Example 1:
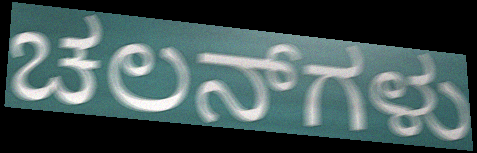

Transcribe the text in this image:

ಚಲನ್‌ಗಳು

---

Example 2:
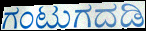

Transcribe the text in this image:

ಗಂಟುಗದಡಿ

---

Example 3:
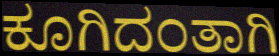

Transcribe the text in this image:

ಕೂಗಿದಂತಾಗಿ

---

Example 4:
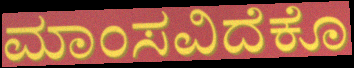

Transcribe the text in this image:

ಮಾಂಸವಿದೆಕೊ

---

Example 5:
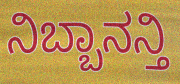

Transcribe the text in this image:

ನಿಬ್ಬಾನನ್ತಿ